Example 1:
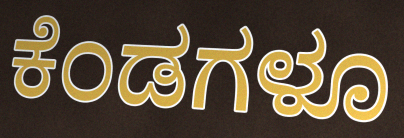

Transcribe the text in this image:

ಕೆಂಡಗಳೂ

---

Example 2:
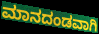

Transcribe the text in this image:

ಮಾನದಂಡವಾಗಿ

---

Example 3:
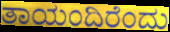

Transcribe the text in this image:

ತಾಯಂದಿರೆಂದು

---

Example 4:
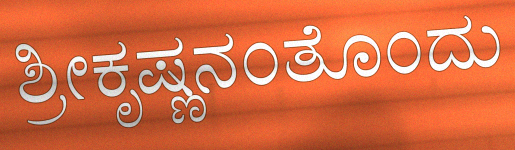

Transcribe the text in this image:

ಶ್ರೀಕೃಷ್ಣನಂತೊಂದು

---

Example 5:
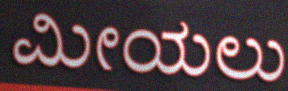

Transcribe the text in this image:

ಮೀಯಲು